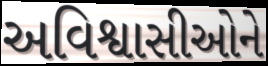
અવિશ્વાસીઓને